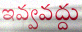
ఇవ్వవద్దు